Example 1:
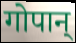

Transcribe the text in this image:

गोपान्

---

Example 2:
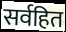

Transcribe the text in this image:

सर्वहित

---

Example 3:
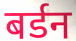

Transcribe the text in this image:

बर्डन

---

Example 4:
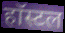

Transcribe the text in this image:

हॉस्टल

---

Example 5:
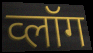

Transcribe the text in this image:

व्लॉग